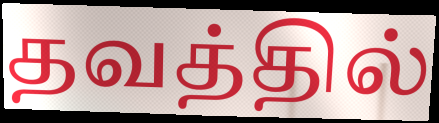
தவத்தில்